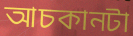
আচকানটা